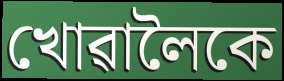
খোৱালৈকে